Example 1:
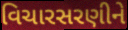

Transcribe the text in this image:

વિચારસરણીને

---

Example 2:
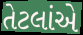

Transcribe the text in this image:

તેટલાંએ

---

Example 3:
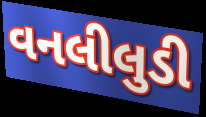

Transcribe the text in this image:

વનલીલુડી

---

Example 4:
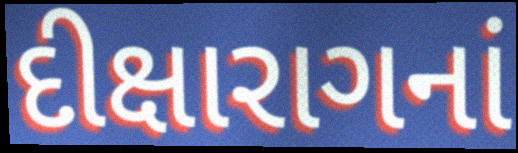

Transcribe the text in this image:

દીક્ષારાગનાં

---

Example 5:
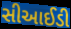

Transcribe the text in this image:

સીઆઈડી